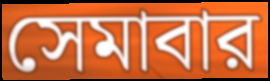
সেমাবার